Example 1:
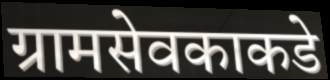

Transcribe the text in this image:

ग्रामसेवकाकडे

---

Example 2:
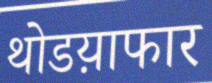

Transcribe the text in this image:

थोडय़ाफार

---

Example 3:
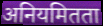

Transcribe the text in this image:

अनियमितता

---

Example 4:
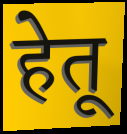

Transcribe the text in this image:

हेतू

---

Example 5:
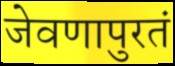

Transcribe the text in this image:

जेवणापुरतं